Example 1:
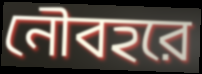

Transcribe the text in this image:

নৌবহরে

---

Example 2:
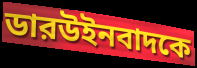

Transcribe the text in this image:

ডারউইনবাদকে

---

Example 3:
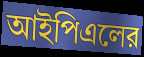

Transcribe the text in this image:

আইপিএলের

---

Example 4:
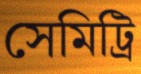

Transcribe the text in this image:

সেমিট্রি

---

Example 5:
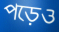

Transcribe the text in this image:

পড়েও